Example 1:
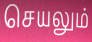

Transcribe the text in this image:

செயலும்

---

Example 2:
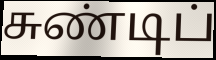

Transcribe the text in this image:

சுண்டிப்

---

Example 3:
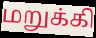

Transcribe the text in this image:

மறுக்கி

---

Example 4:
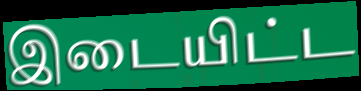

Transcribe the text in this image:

இடையிட்ட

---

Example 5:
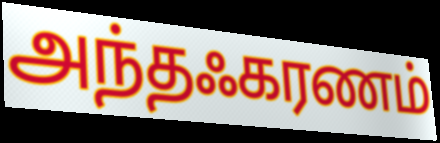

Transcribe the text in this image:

அந்தஃகரணம்